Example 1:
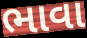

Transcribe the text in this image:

ભાવા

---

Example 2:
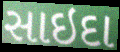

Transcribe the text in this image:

સાઇદા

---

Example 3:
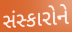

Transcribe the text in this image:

સંસ્કારોને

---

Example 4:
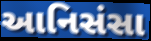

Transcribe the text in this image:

આનિસંસા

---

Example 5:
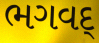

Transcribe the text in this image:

ભગવદ્